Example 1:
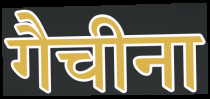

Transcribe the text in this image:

गैचीना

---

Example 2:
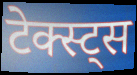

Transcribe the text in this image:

टेक्स्ट्स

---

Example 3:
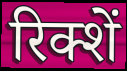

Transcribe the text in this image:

रिक्शें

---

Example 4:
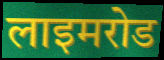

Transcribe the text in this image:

लाइमरोड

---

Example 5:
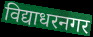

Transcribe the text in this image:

विद्याधरनगर